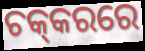
ଚକ୍‌କରରେ